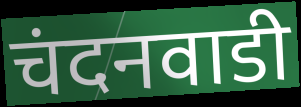
चंदनवाडी